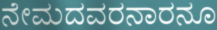
ನೇಮದವರನಾರನೂ